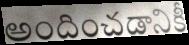
అందించడానికీ